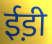
ई़डी